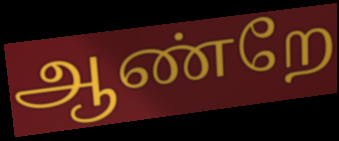
ஆண்றே